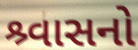
શ્ર્વાસનો